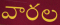
వారల